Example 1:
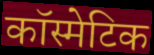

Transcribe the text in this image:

कॉस्मेटिक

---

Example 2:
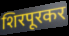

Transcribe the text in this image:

शिरपूरकर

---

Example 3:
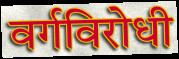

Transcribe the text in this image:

वर्गविरोधी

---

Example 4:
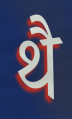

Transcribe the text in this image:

थै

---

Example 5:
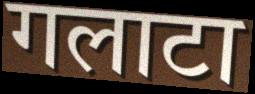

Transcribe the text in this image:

गलाटा